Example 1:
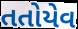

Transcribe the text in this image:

તતોયેવ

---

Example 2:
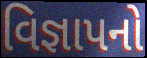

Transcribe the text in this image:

વિજ્ઞાપનો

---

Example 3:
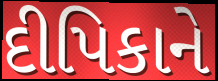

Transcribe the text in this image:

દીપિકાને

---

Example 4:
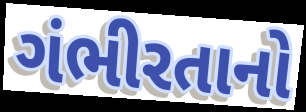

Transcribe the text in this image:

ગંભીરતાનો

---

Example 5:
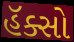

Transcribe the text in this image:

હૅક્સો